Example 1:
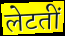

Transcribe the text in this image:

लेटतीं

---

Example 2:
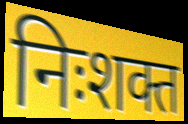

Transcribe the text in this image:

निःशक्त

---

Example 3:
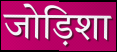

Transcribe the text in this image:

जोड़िशा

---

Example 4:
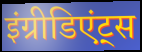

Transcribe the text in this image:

इंग्रीडिएंट्स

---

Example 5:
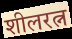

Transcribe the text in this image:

शीलरत्न